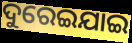
ଦୁରେଇଯାଇ